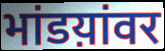
भांडय़ांवर